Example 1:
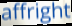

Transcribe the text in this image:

affright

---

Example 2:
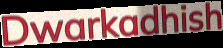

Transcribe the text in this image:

Dwarkadhish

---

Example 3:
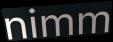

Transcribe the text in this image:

nimm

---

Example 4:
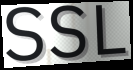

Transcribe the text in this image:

SSL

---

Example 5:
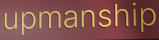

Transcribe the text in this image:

upmanship